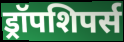
ड्रॉपशिपर्स